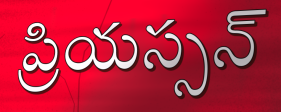
ప్రియస్సన్